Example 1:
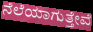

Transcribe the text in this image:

ನೆಲೆಯಾಗುತ್ತೇವೆ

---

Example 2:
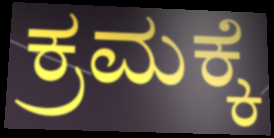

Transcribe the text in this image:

ಕ್ರಮಕ್ಕೆ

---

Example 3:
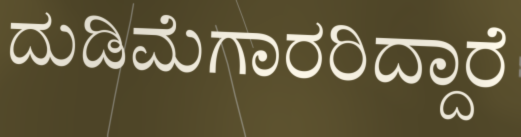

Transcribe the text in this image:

ದುಡಿಮೆಗಾರರಿದ್ದಾರೆ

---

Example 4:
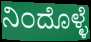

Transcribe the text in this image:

ನಿಂದೊಳ್ಳೆ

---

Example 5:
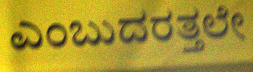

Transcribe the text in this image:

ಎಂಬುದರತ್ತಲೇ